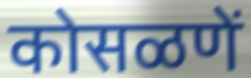
कोसळणें